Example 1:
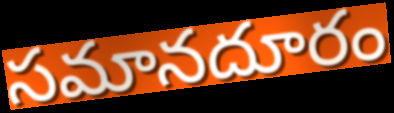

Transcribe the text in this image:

సమానదూరం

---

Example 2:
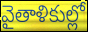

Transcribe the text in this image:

వైతాళికుల్లో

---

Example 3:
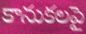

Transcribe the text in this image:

కానుకలపై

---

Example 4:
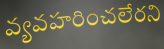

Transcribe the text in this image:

వ్యవహరించలేరని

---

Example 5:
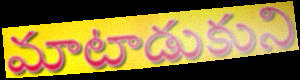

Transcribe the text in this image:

మాటాడుకుని